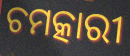
ଚମତ୍କାରୀ